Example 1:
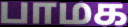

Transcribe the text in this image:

பாமக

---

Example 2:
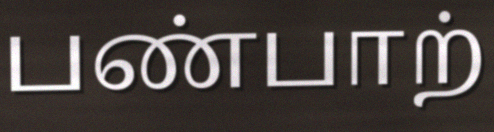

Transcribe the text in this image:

பண்பாற்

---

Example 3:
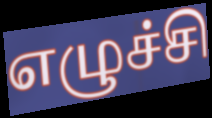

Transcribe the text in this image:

எழுச்சி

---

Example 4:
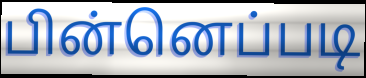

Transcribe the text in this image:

பின்னெப்படி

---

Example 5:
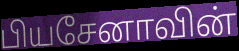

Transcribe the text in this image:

பியசேனாவின்